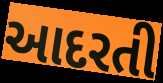
આદરતી